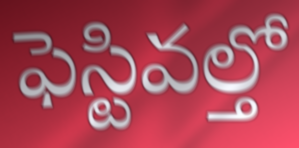
ఫెస్టివల్తో